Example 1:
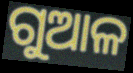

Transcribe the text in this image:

ଗୁଆଳ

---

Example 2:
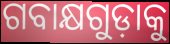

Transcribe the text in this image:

ଗବାକ୍ଷଗୁଡ଼ାକୁ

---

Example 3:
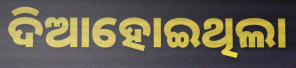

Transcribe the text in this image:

ଦିଆହୋଇଥିଲା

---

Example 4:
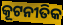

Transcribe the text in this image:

କୂଟନୀତିକ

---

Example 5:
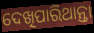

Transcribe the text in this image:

ଦେଖିପାରିଥାନ୍ତା